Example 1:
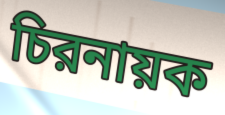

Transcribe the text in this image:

চিরনায়ক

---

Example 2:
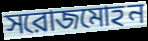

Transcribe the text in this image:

সরোজমোহন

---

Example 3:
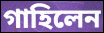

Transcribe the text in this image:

গাহিলেন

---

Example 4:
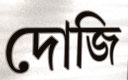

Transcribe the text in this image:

দোজি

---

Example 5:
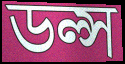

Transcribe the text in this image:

ডল্স